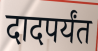
दादपर्यंत